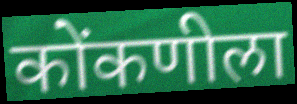
कोंकणीला